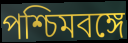
পশ্চিমবঙ্গে